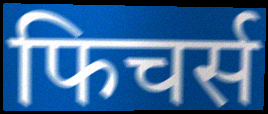
फिचर्स